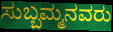
ಸುಬ್ಬಮ್ಮನವರು